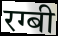
रग्बी